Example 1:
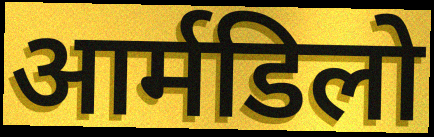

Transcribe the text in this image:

आर्मडिलो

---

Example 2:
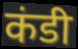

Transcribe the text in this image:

कंडी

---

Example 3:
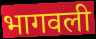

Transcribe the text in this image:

भागवली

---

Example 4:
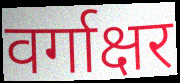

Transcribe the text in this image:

वर्गाक्षर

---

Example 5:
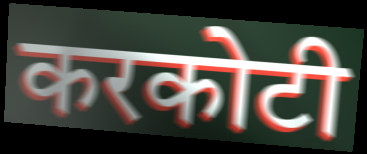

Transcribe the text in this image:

करकोटी